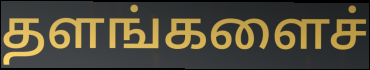
தளங்களைச்